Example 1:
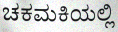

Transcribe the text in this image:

ಚಕಮಕಿಯಲ್ಲಿ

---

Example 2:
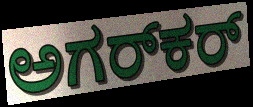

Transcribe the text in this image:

ಅಗರ್‌ಕರ್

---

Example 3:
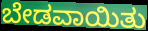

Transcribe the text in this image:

ಬೇಡವಾಯಿತು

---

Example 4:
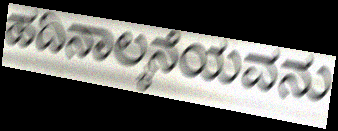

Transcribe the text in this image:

ಹದಿನಾಲ್ಕನೆಯವನು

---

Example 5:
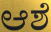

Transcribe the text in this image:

ಆಶೆ